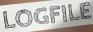
LOGFILE